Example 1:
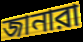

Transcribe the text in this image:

জানারা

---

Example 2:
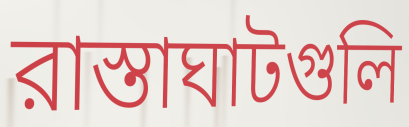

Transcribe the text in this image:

রাস্তাঘাটগুলি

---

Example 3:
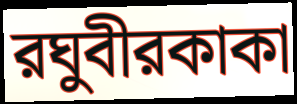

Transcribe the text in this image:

রঘুবীরকাকা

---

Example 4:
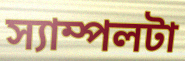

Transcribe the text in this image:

স্যাম্পলটা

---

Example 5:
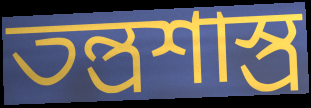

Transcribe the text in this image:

তন্ত্রশাস্ত্র